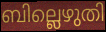
ബില്ലെഴുതി